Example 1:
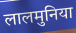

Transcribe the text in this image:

लालमुनिया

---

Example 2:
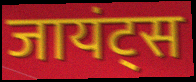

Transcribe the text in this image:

जायंट्स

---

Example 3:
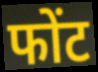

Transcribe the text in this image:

फोंट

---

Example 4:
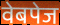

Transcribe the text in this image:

वेबपेज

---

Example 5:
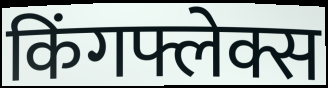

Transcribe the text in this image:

किंगफ्लेक्स